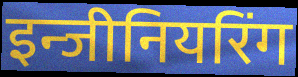
इन्जीनियरिंग